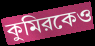
কুমিরকেও